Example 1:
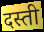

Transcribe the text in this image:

दस्ती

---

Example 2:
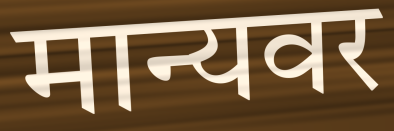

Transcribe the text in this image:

मान्‍यवर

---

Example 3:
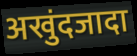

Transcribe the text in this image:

अखुंदजादा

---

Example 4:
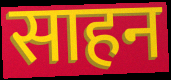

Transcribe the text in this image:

साहन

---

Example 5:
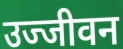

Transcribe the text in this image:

उज्जीवन